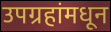
उपग्रहांमधून